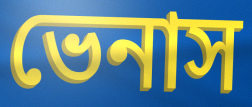
ভেনাস